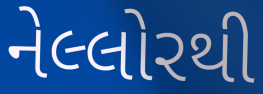
નેલ્લોરથી